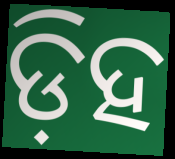
ଡ଼ିହ